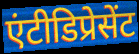
एंटीडिप्रेसेंट